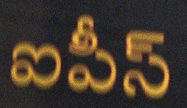
ఐపీస్